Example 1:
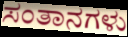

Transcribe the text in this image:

ಸಂತಾನಗಳು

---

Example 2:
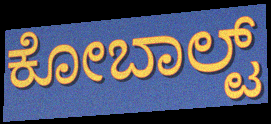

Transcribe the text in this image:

ಕೋಬಾಲ್ಟ್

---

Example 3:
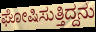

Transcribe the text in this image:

ಘೋಷಿಸುತ್ತಿದ್ದನು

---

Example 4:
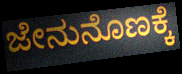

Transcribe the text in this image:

ಜೇನುನೊಣಕ್ಕೆ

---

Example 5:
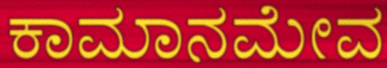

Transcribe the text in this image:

ಕಾಮಾನಮೇವ